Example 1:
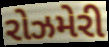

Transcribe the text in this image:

રોઝમેરી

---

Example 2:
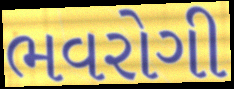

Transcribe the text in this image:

ભવરોગી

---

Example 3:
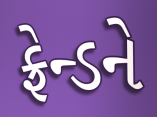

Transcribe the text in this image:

ફ્રેન્ડને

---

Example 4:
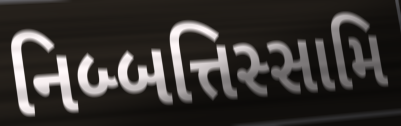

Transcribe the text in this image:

નિબ્બત્તિસ્સામિ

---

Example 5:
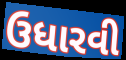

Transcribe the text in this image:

ઉધારવી